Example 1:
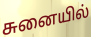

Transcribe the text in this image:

சுனையில்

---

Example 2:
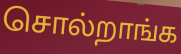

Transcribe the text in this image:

சொல்றாங்க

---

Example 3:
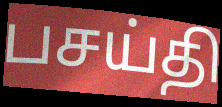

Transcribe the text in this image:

பசய்தி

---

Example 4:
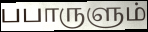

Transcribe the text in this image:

பபாருளும்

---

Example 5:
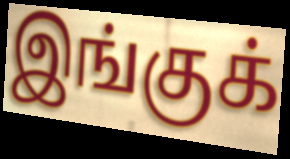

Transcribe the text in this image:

இங்குக்